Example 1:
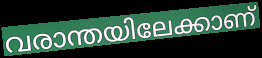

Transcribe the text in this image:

വരാന്തയിലേക്കാണ്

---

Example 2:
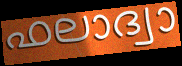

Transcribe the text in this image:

ഫലാദ്വാ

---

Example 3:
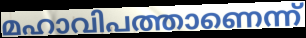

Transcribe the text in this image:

മഹാവിപത്താണെന്ന്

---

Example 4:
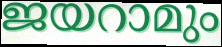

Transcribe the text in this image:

ജയറാമും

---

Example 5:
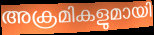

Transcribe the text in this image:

അക്രമികളുമായി